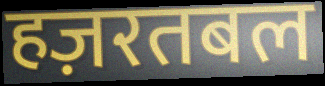
हज़रतबल